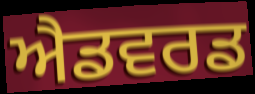
ਐਡਵਰਡ